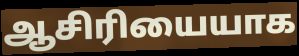
ஆசிரியையாக